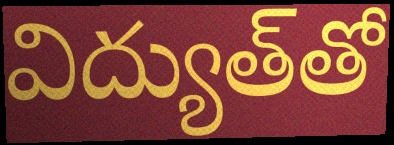
విద్యుత్‌తో